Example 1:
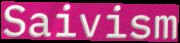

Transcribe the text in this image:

Saivism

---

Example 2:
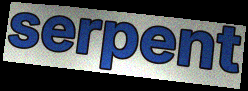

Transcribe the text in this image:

serpent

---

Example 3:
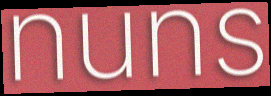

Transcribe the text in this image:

nuns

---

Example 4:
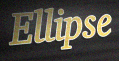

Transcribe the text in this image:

Ellipse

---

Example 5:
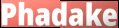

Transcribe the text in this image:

Phadake